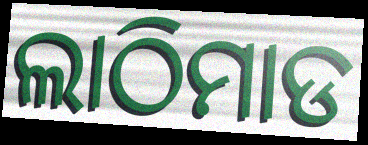
ଲାଠିମାଡ